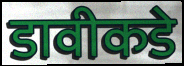
डावीकडे